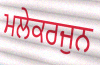
ਮਲੇਕਰਜੁਨ